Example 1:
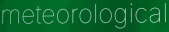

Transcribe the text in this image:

meteorological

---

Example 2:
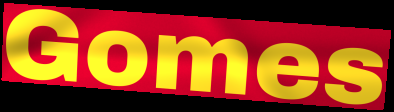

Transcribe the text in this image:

Gomes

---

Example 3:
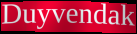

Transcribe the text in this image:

Duyvendak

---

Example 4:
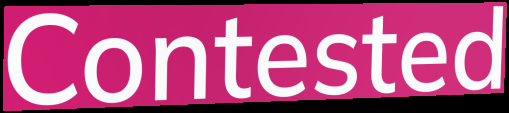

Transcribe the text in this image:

Contested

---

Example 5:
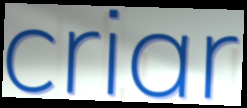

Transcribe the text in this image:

criar